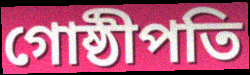
গোষ্ঠীপতি